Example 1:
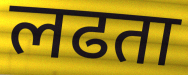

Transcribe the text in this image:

लढता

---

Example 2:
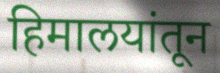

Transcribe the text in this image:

हिमालयांतून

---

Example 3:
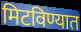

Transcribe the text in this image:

मिटविण्यात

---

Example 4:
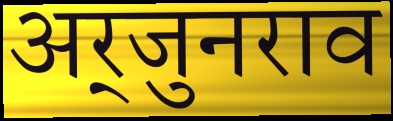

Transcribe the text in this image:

अर्जुनराव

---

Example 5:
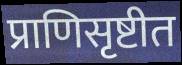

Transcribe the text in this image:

प्राणिसृष्टीत